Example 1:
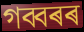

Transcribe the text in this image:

গব্বৰৰ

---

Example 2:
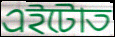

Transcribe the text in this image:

এইটোত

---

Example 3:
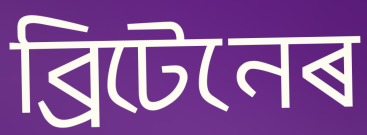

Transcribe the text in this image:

ব্ৰিটেনেৰ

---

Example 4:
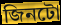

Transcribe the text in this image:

জিনটো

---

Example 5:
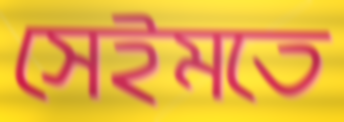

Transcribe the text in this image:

সেইমতে